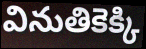
వినుతికెక్కి